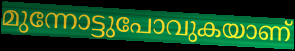
മുന്നോട്ടുപോവുകയാണ്